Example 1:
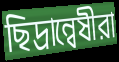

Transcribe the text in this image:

ছিদ্রান্বেষীরা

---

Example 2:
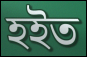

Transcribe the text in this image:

হইত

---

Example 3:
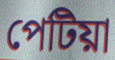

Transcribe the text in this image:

পেটিয়া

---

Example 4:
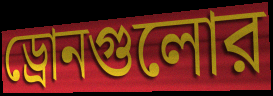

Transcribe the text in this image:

ড্রোনগুলোর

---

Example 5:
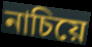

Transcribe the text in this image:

নাচিয়ে